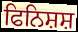
ਫਿਨਿਸ਼ਸ਼